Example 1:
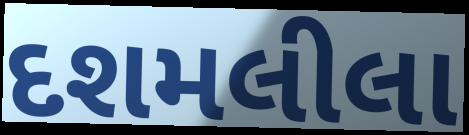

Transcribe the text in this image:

દશમલીલા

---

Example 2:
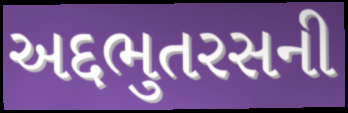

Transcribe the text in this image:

અદ્દભુતરસની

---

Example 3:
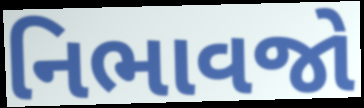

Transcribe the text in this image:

નિભાવજો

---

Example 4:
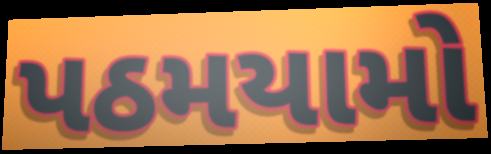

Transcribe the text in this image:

પઠમયામો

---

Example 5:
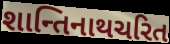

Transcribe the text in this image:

શાન્તિનાથચરિત